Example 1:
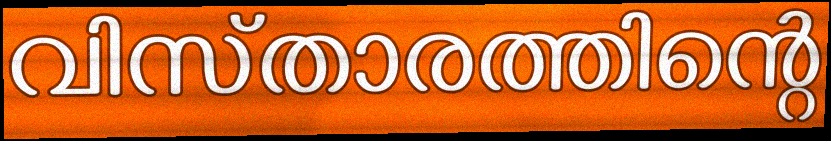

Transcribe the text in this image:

വിസ്‌താരത്തിന്റെ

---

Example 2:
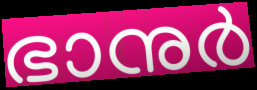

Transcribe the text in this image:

ഭാനുർ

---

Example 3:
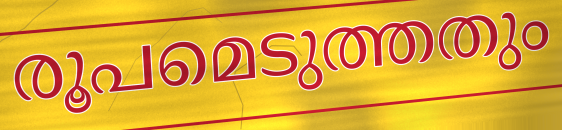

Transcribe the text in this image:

രൂപമെടുത്തതും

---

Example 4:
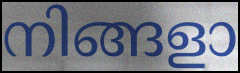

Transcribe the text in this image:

നിങ്ങളാ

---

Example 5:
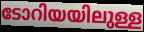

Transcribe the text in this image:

ടോറിയയിലുള്ള